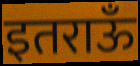
इतराऊँ